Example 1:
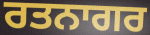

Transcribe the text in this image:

ਰਤਨਾਗਰ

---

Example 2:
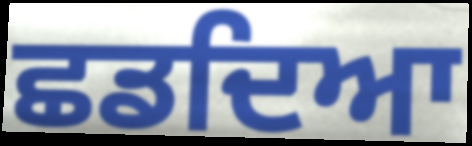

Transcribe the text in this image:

ਛਡਦਿਆ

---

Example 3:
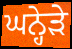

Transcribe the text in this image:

ਘਨ੍ਹੇੜੇ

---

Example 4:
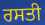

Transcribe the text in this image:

ਰਸਤੀ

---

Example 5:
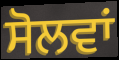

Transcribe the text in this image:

ਸੋਲਵਾਂ